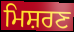
ਮਿਸ਼ਰਣ